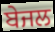
ਬੇਜਲ